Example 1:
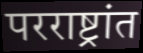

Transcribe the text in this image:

परराष्ट्रांत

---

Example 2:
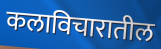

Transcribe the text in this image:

कलाविचारातील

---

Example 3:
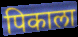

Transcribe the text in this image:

पिकाला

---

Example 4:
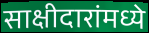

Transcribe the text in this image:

साक्षीदारांमध्ये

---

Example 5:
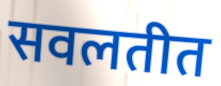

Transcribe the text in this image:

सवलतीत